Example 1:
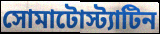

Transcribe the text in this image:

সোমাটোস্ট্যাটিন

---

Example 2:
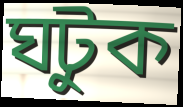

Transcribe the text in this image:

ঘটুক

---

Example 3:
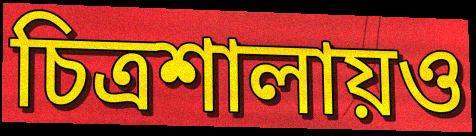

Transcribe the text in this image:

চিত্রশালায়ও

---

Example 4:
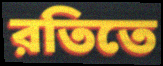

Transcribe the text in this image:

রতিতে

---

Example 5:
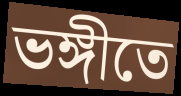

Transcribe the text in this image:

ভঙ্গীতে